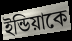
ইন্ডিয়াকে